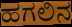
ಹಗಲಿನ